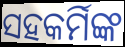
ସହକର୍ମିଙ୍କ